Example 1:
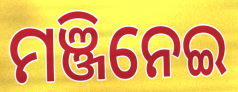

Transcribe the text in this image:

ମଞ୍ଜିନେଇ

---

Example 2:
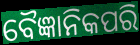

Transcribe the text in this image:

ବୈଜ୍ଞାନିକପରି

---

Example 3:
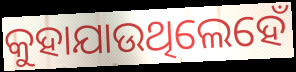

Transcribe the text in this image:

କୁହାଯାଉଥିଲେହେଁ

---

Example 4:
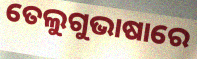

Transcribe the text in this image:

ତେଲୁଗୁଭାଷାରେ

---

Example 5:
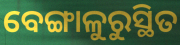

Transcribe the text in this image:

ବେଙ୍ଗାଳୁରୁସ୍ଥିତ